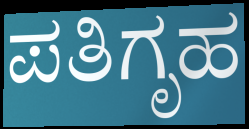
ಪತಿಗೃಹ